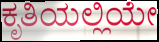
ಕೃತಿಯಲ್ಲಿಯೇ